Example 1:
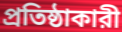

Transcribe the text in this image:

প্রতিষ্ঠাকারী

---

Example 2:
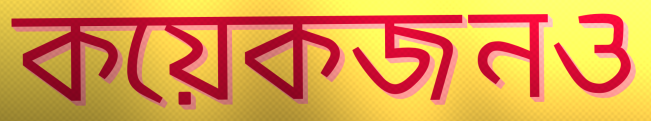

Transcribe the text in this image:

কয়েকজনও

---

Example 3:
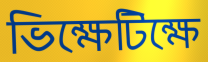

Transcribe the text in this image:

ভিক্ষেটিক্ষে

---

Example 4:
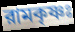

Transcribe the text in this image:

রামকৃষ্ণঃ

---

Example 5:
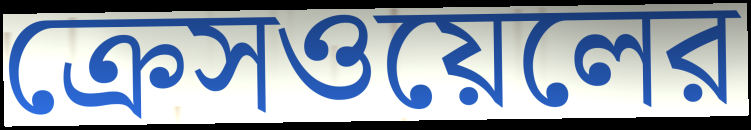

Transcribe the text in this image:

ক্রেসওয়েলের